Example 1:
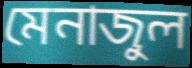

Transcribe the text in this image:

মেনাজুল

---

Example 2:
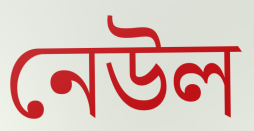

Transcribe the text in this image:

নেউল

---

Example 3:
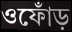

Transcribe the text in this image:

ওফোঁড়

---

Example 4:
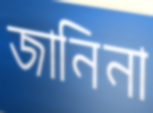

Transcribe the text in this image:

জানিনা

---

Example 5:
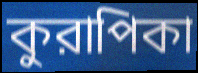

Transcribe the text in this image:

কুরাপিকা